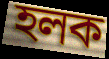
হলক